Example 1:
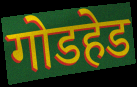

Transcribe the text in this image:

गोडहेड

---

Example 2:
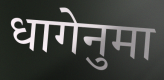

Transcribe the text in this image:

धागेनुमा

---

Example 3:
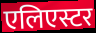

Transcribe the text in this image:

एलिएस्टर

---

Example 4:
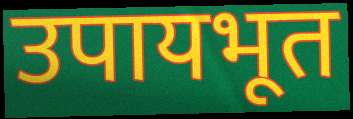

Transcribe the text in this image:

उपायभूत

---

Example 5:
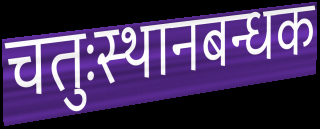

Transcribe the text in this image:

चतुःस्थानबन्धक